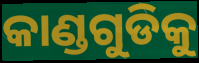
କାଣ୍ଡଗୁଡିକୁ